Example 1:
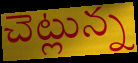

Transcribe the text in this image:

చెట్లున్న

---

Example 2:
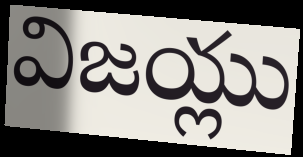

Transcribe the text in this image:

విజయ్లు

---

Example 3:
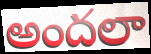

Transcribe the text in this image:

అందలా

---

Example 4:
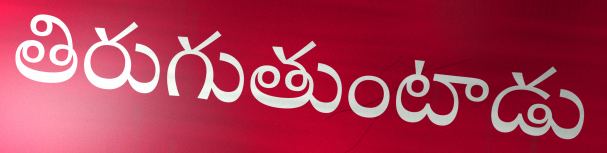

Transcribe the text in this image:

తిరుగుతుంటాడు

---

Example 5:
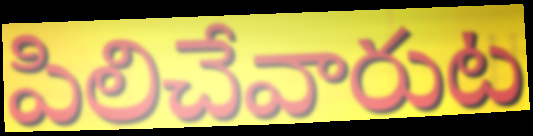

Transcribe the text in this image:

పిలిచేవారుట